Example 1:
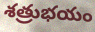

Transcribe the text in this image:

శత్రుభయం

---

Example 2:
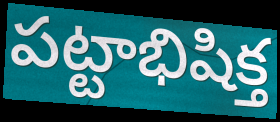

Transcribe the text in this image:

పట్టాభిషిక్త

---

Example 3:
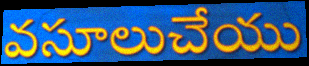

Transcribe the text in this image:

వసూలుచేయు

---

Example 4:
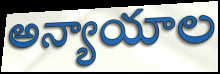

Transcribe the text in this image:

అన్యాయాల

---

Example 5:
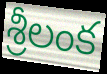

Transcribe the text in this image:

శ్రీలంక